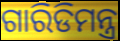
ଗାରିଡିମନ୍ତ୍ର